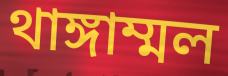
থাঙ্গাম্মল